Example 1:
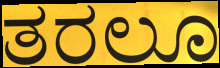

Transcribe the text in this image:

ತರಲೂ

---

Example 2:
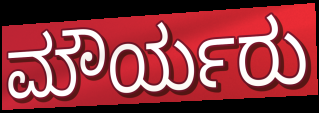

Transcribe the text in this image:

ಮೌರ್ಯರು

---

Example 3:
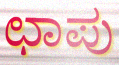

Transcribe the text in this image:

ಛಾಪು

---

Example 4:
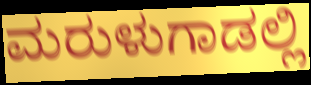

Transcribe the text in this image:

ಮರುಳುಗಾಡಲ್ಲಿ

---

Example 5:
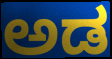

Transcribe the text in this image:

ಅಡ